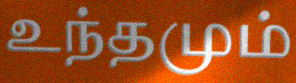
உந்தமும்